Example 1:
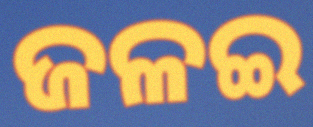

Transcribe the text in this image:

ଜଳଇ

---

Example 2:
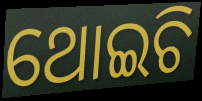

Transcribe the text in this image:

ଥୋଇଚି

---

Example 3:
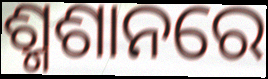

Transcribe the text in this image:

ଶ୍ମଶାନରେ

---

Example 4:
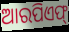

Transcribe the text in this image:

ଆରପିଏଫ୍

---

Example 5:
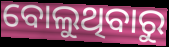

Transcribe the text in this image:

ବୋଲୁଥିବାରୁ